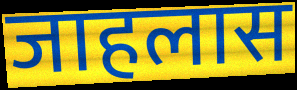
जाहलास